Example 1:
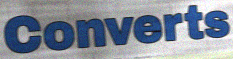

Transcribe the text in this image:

Converts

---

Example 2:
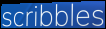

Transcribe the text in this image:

scribbles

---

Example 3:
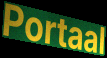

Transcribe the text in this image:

Portaal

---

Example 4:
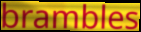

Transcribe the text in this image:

brambles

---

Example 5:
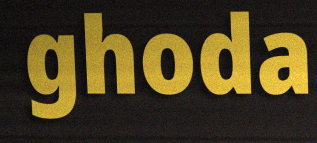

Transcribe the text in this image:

ghoda